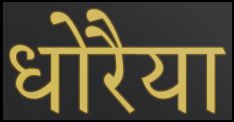
धोरैया